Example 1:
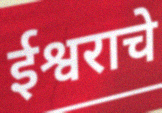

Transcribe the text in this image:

ईश्वराचे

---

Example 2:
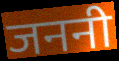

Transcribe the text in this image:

जननी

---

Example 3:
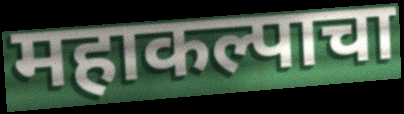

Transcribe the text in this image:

महाकल्पाचा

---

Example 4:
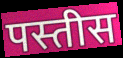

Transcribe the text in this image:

पस्तीस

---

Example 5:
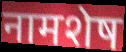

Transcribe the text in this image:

नामशेष